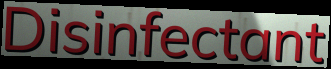
Disinfectant